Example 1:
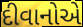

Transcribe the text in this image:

દીવાનોએ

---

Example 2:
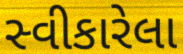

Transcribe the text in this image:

સ્વીકારેલા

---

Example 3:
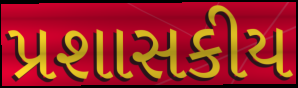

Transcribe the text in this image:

પ્રશાસકીય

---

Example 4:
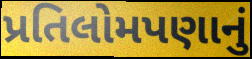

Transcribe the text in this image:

પ્રતિલોમપણાનું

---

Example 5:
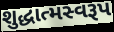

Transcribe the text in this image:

શુદ્ધાત્મસ્વરૂપ